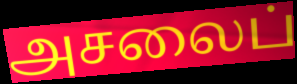
அசலைப்